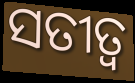
ସତୀତ୍ବ